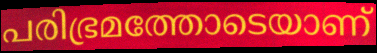
പരിഭ്രമത്തോടെയാണ്